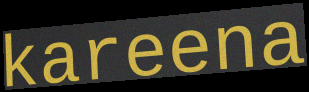
kareena